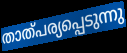
താത്പര്യപ്പെടുന്നു